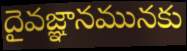
దైవజ్ఞానమునకు